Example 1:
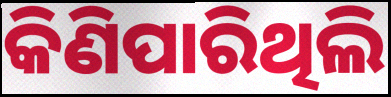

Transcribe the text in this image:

କିଣିପାରିଥିଲି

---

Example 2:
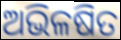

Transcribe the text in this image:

ଅଭିଳଷିତ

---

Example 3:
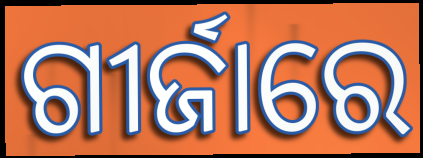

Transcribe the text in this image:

ଗୀର୍ଜାରେ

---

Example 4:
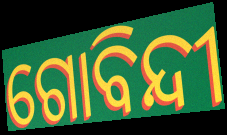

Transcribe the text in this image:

ଗୋବିନ୍ଦୀ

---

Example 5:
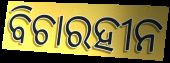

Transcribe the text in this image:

ବିଚାରହୀନ